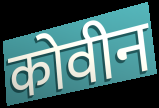
कोवीन